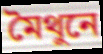
মৈথুনে